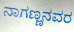
ನಾಗಣ್ಣನವರ